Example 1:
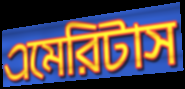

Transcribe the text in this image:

এমেরিটাস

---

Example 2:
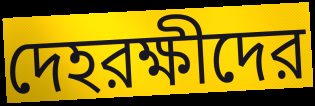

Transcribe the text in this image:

দেহরক্ষীদের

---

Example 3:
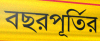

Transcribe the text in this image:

বছরপূর্তির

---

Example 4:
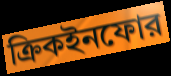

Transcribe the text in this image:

ক্রিকইনফোর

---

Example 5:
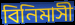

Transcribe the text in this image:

বিনিমাসী